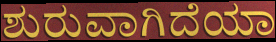
ಶುರುವಾಗಿದೆಯಾ